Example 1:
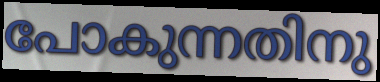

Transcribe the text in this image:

പോകുന്നതിനു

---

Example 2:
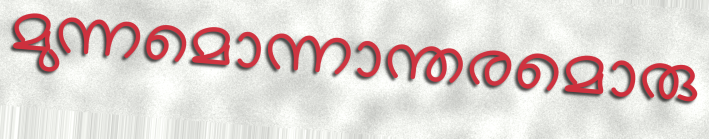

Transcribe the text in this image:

മുന്നമൊന്നാന്തരമൊരു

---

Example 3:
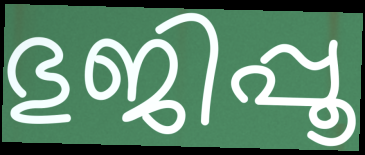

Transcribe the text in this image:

ഭുജിപ്പൂ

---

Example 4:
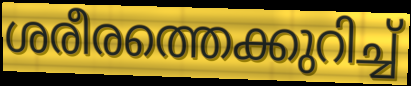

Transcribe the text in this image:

ശരീരത്തെക്കുറിച്ച്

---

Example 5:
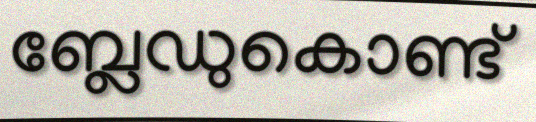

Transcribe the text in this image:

ബ്ലേഡുകൊണ്ട്